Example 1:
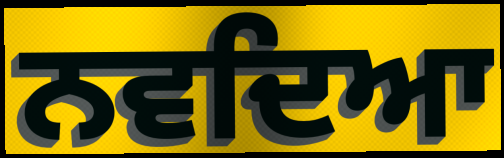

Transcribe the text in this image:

ਨਵਦਿਆ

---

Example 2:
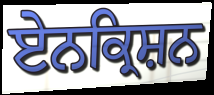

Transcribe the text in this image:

ਏਨਕ੍ਰਿਸ਼ਨ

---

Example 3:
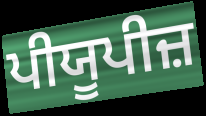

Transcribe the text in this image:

ਪੀਯੂਪੀਜ਼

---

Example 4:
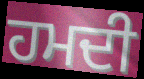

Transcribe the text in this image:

ਹਮਦੀ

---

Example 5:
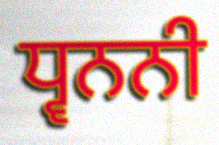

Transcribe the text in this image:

ਧ੍ਵਨਨੀ